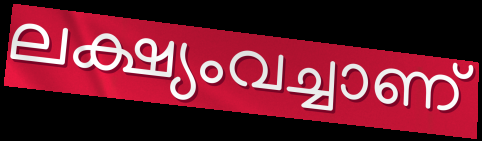
ലക്ഷ്യംവച്ചാണ്